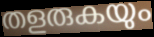
തളരുകയും